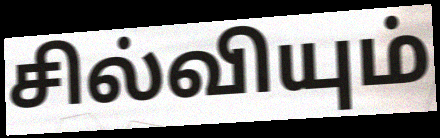
சில்வியும்